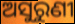
ଅସୁରୁଣୀ